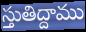
స్తుతిద్దాము